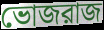
ভোজরাজ